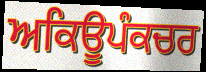
ਅਕਿਊਪੰਕਚਰ